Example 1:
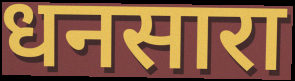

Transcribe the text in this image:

धनसारा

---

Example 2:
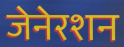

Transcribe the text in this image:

जेनेरशन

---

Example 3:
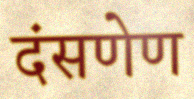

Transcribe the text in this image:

दंसणेण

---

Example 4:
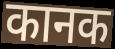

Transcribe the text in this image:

कानक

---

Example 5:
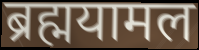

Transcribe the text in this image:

ब्रह्मयामल